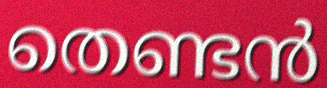
തെണ്ടൻ